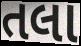
તલા